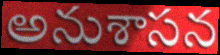
అనుశాసన